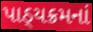
પાઠ્યક્રમનાં